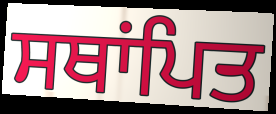
ਸਥਾਂਪਿਤ